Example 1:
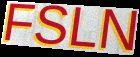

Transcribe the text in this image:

FSLN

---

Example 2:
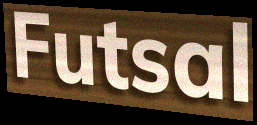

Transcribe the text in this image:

Futsal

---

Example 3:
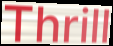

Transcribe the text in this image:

Thrill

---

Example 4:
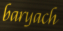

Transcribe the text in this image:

baryach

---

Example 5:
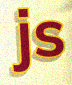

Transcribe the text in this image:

js